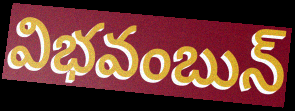
విభవంబున్